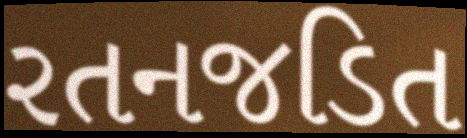
રતનજડિત